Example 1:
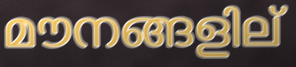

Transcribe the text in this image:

മൗനങ്ങളില്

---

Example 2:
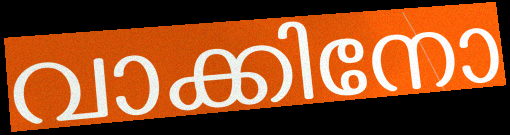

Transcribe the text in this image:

വാക്കിനോ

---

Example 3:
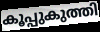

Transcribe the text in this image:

കൂപ്പുകുത്തി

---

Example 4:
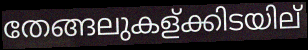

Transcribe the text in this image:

തേങ്ങലുകള്ക്കിടയില്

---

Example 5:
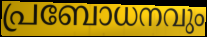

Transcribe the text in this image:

പ്രബോധനവും